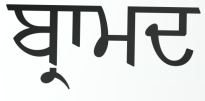
ਬ੍ਰਾਮਦ